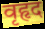
वृहृद